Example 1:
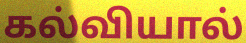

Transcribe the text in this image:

கல்வியால்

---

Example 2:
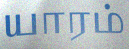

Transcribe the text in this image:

யாரம்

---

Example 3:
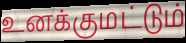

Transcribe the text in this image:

உனக்குமட்டும்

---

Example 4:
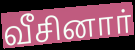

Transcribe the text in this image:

வீசினார்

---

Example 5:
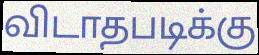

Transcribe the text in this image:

விடாதபடிக்கு